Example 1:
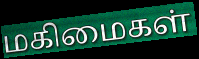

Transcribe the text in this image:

மகிமைகள்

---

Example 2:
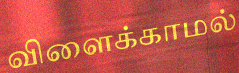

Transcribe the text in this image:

விளைக்காமல்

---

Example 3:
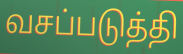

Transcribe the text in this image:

வசப்படுத்தி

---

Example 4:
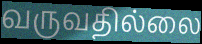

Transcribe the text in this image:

வருவதில்லை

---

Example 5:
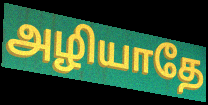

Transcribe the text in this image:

அழியாதே